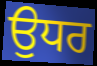
ਉਧਰ